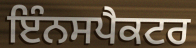
ਇੰਨਸਪੈਕਟਰ